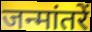
जन्मांतरें